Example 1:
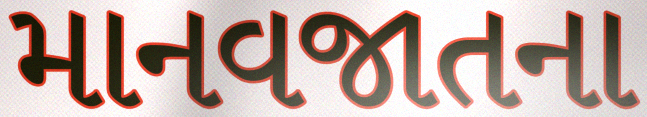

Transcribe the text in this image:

માનવજાતના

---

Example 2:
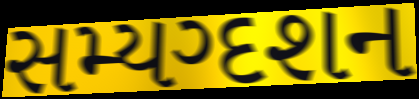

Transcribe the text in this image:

સમ્યગ્દશન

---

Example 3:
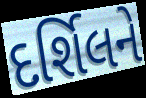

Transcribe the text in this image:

દર્શિલને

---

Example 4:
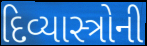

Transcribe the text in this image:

દિવ્યાસ્ત્રોની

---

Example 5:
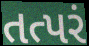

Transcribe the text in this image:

તત્પરં